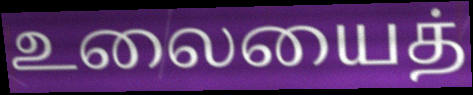
உலையைத்